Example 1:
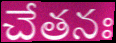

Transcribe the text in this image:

చేతనః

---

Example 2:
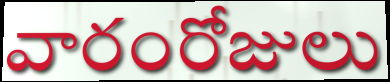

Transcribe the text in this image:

వారంరోజులు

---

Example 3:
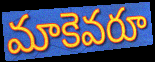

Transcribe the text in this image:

మాకెవరూ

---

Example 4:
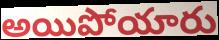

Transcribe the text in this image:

అయిపోయారు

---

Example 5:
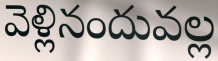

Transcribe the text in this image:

వెళ్లినందువల్ల